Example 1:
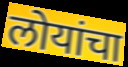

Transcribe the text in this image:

लोयांचा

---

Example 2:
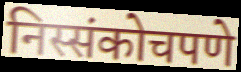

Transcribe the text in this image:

निस्संकोचपणे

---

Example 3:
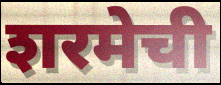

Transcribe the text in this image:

शरमेची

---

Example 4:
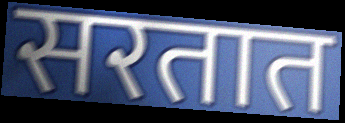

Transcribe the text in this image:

सरतात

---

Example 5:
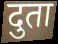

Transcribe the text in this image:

दुता